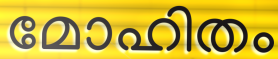
മോഹിതം